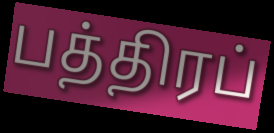
பத்திரப்